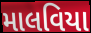
માલવિયા